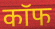
कॉफ